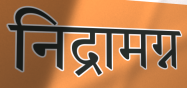
निद्रामग्न